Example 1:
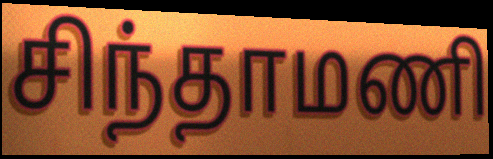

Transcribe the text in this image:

சிந்தாமணி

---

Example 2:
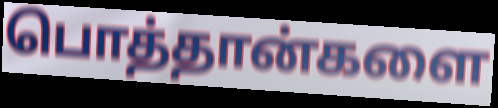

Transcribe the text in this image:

பொத்தான்களை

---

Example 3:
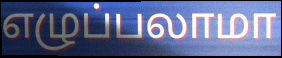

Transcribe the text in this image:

எழுப்பலாமா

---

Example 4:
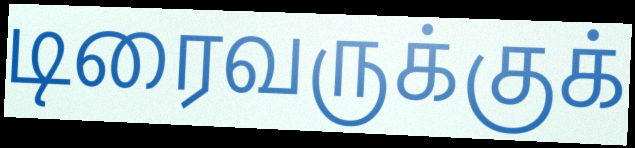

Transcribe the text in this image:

டிரைவருக்குக்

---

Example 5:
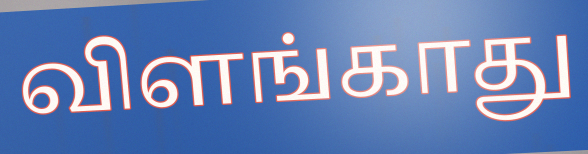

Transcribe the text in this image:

விளங்காது